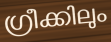
ഗ്രീക്കിലും